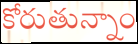
కోరుతున్నాం